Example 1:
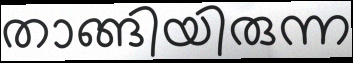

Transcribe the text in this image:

താങ്ങിയിരുന്ന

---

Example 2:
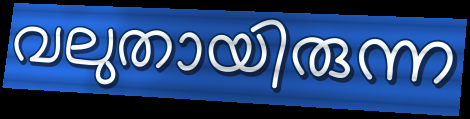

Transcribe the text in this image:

വലുതായിരുന്ന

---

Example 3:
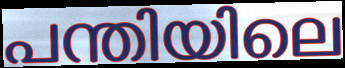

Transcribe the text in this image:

പന്തിയിലെ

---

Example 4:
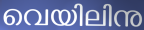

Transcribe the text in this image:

വെയിലിനു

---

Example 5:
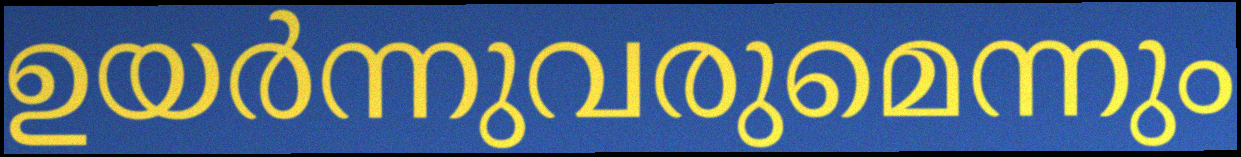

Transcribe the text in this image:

ഉയർന്നുവരുമെന്നും